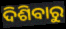
ଦିଶିବାରୁ